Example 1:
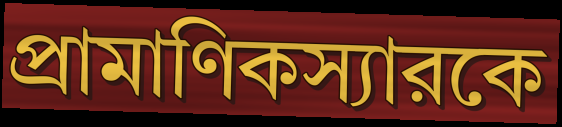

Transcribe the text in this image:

প্রামাণিকস্যারকে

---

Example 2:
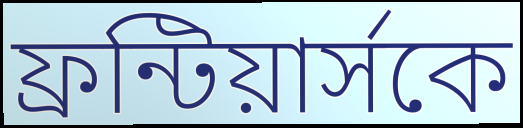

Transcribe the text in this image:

ফ্রন্টিয়ার্সকে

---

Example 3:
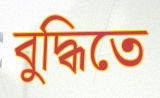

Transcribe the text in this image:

বুদ্ধিতে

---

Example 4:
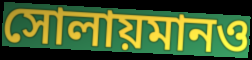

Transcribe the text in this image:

সোলায়মানও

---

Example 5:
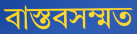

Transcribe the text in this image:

বাস্তবসম্মত